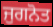
ਜੁਗਨੋਤ